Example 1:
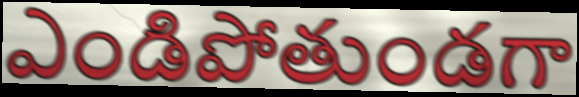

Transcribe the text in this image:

ఎండిపోతుండగా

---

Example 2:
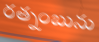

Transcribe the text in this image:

రత్నంబును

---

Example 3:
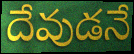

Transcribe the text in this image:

దేవుడనే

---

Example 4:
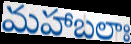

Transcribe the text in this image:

మహాబలాః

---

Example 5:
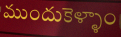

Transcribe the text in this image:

ముందుకెళ్ళాం